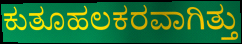
ಕುತೂಹಲಕರವಾಗಿತ್ತು